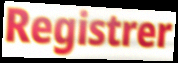
Registrer